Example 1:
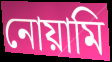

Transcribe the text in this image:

নোয়ামি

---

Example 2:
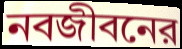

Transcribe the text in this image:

নবজীবনের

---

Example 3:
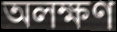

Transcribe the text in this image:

অলক্ষণ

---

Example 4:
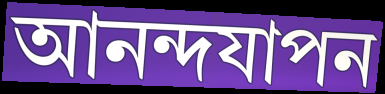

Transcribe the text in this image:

আনন্দযাপন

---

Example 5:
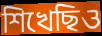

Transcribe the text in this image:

শিখেছিও